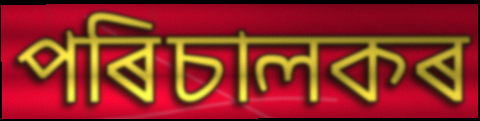
পৰিচালকৰ